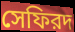
সেফিরদ